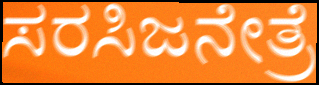
ಸರಸಿಜನೇತ್ರೆ